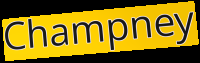
Champney